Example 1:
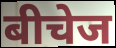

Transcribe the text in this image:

बीचेज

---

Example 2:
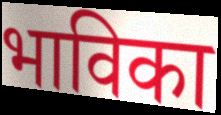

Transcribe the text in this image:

भाविका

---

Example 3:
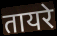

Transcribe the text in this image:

तायरे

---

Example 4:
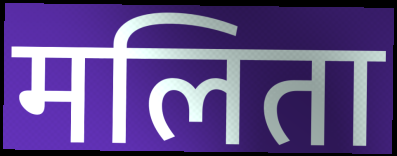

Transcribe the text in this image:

मलिता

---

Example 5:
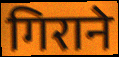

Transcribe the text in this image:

गिराने